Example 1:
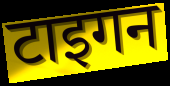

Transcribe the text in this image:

टाइगन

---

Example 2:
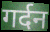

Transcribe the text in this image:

गर्दन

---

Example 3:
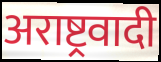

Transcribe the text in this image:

अराष्ट्रवादी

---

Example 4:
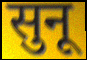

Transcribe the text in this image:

सुनू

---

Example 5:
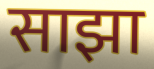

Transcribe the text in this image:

साझा